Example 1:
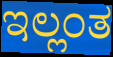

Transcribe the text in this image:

ಇಲ್ಲಂತ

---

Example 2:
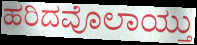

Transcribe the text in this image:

ಹರಿದವೊಲಾಯ್ತು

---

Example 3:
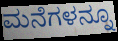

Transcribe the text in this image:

ಮನೆಗಳನ್ನೂ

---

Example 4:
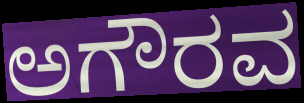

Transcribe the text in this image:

ಅಗೌರವ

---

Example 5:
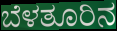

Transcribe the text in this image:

ಬೆಳತೂರಿನ